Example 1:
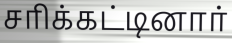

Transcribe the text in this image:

சரிக்கட்டினார்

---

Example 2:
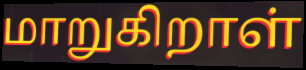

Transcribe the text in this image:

மாறுகிறாள்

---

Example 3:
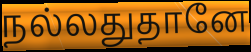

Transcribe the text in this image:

நல்லதுதானே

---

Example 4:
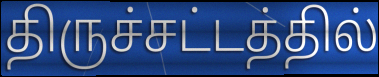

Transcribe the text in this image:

திருச்சட்டத்தில்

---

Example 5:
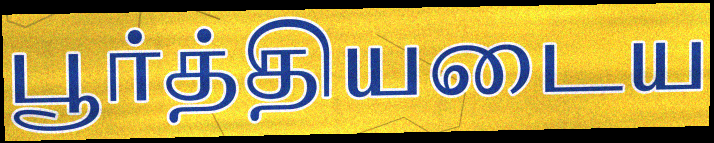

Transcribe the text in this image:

பூர்த்தியடைய